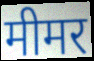
मीमर